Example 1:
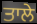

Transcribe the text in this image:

ਤਾਲੇ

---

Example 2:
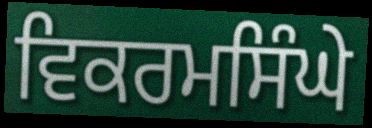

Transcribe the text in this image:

ਵਿਕਰਮਸਿੰਘੇ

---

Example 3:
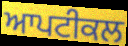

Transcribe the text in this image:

ਆਪਟੀਕਲ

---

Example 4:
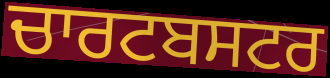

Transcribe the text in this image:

ਚਾਰਟਬਸਟਰ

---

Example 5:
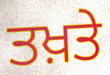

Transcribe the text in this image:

ਤਖ਼ਤੇ